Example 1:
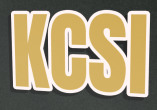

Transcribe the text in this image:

KCSI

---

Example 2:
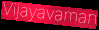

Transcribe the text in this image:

Vijayavaman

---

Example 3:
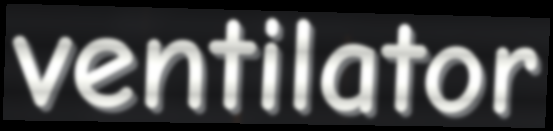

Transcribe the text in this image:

ventilator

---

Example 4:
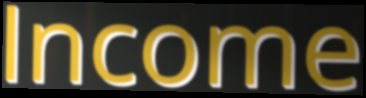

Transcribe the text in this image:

Income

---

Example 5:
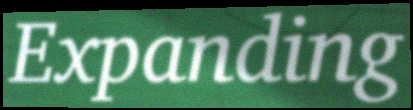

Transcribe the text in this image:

Expanding